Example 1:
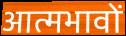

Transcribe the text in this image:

आत्मभावों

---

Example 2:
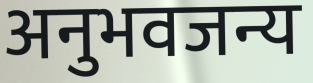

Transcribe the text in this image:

अनुभवजन्य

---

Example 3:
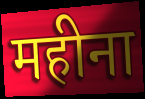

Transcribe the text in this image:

महीना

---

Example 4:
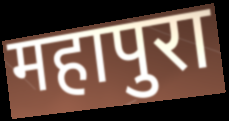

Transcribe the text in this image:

महापुरा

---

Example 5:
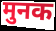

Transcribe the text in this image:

मुनक